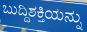
ಬುದ್ದಿಶಕ್ತಿಯನ್ನು